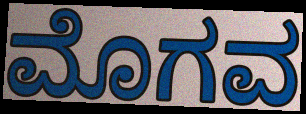
ಮೊಗವ